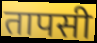
तापसी